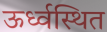
ऊर्ध्वस्थित